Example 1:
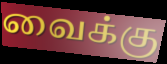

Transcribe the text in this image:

வைக்கு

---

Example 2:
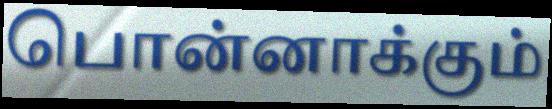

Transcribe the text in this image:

பொன்னாக்கும்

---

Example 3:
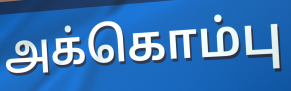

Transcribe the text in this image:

அக்கொம்பு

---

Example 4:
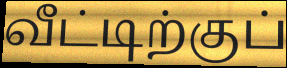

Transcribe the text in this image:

வீட்டிற்குப்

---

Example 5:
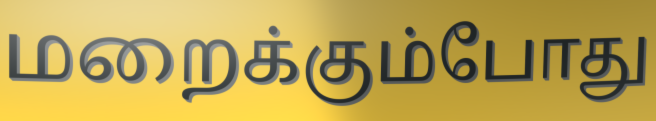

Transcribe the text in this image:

மறைக்கும்போது